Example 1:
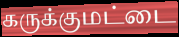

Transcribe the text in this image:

கருக்குமட்டை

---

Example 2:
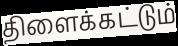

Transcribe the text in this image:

திளைக்கட்டும்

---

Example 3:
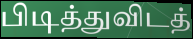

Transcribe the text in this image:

பிடித்துவிடத்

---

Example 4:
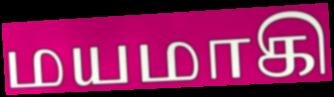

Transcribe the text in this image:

மயமாகி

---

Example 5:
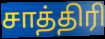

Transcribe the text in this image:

சாத்திரி